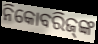
ନିକୋବରିଜ୍‍ଙ୍କ